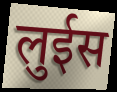
लुईस